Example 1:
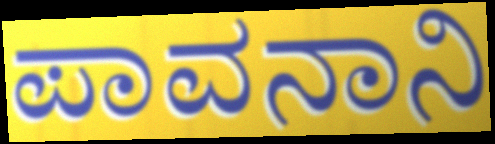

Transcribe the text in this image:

ಪಾವನಾನಿ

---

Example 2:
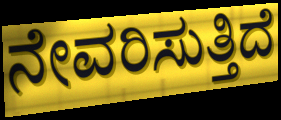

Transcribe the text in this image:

ನೇವರಿಸುತ್ತಿದೆ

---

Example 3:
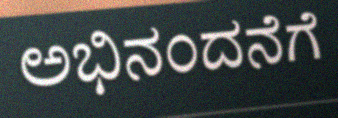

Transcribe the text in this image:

ಅಭಿನಂದನೆಗೆ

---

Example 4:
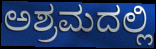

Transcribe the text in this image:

ಅಶ್ರಮದಲ್ಲಿ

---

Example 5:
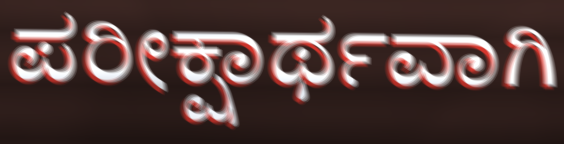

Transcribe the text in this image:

ಪರೀಕ್ಷಾರ್ಥವಾಗಿ